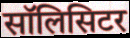
सॉलिसिटर